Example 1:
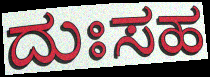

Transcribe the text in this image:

ದುಃಸಹ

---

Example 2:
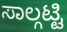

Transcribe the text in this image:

ಸಾಲ್ಗಟ್ಟಿ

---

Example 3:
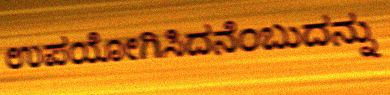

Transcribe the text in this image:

ಉಪಯೋಗಿಸಿದನೆಂಬುದನ್ನು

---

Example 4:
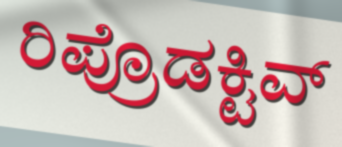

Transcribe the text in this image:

ರಿಪ್ರೊಡಕ್ಟಿವ್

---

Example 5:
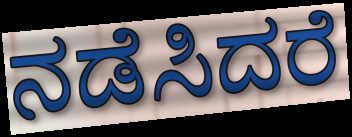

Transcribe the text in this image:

ನಡೆಸಿದರೆ